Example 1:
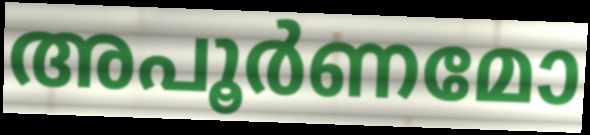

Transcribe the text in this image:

അപൂർണമോ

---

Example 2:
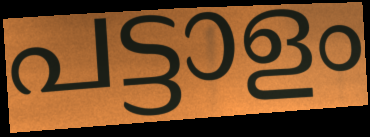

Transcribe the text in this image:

പട്ടാളം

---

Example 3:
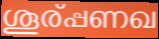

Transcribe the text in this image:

ശൂര്പ്പണഖ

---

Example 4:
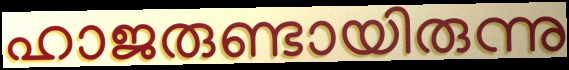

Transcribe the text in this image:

ഹാജരുണ്ടായിരുന്നു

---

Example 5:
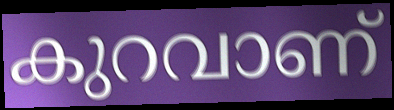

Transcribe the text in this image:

കുറവാണ്